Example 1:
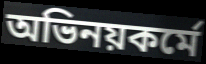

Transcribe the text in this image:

অভিনয়কর্মে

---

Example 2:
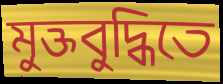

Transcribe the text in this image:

মুক্তবুদ্ধিতে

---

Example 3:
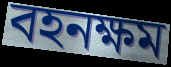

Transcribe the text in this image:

বহনক্ষম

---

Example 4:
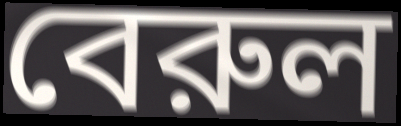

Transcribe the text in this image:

বেরুল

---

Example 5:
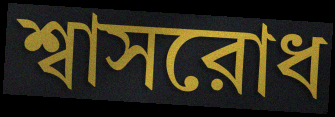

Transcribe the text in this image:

শ্বাসরোধ